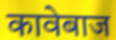
कावेबाज